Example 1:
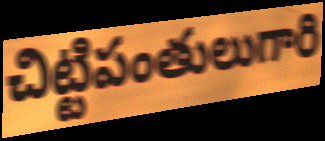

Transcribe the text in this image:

చిట్టిపంతులుగారి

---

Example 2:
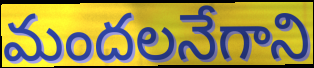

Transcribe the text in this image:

మందలనేగాని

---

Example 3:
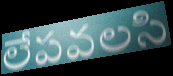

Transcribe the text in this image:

లేపవలసి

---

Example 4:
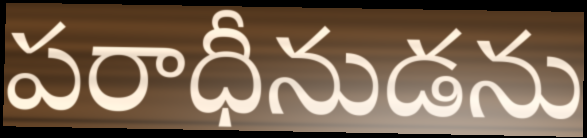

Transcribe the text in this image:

పరాధీనుడను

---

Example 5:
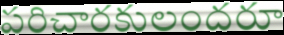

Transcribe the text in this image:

పరిచారకులందరూ